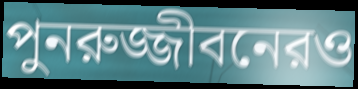
পুনরুজ্জীবনেরও